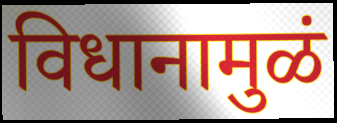
विधानामुळं